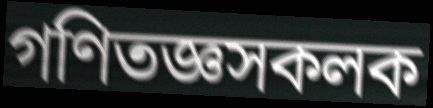
গণিতজ্ঞসকলক